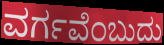
ವರ್ಗವೆಂಬುದು